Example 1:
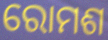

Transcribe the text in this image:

ରୋମଶ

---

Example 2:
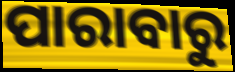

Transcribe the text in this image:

ପାରାବାରୁ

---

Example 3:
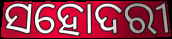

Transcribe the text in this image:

ସହୋଦରୀ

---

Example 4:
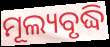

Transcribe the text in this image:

ମୂଲ୍ୟବୃଦ୍ଧି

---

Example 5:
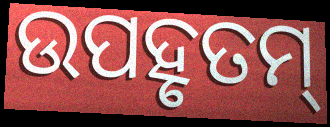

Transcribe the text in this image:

ଉପହୃତମ୍